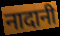
नादानी